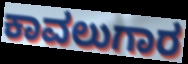
ಕಾವಲುಗಾರ